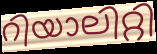
റിയാലിറ്റി